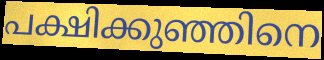
പക്ഷിക്കുഞ്ഞിനെ